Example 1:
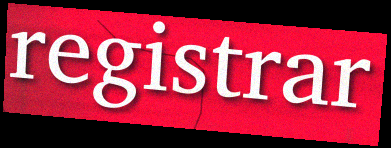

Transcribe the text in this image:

registrar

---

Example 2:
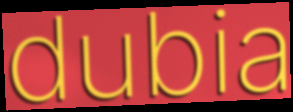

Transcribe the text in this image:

dubia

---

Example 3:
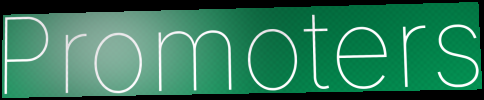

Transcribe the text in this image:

Promoters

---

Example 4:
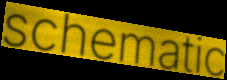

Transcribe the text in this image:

schematic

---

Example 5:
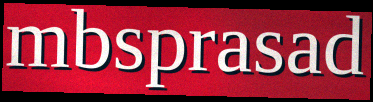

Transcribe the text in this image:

mbsprasad